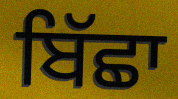
ਬਿੱਛਾ